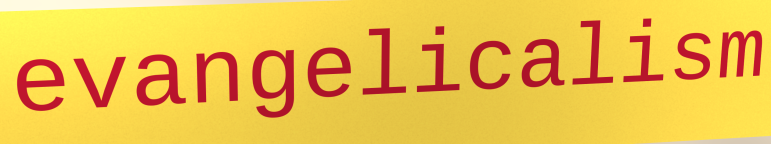
evangelicalism